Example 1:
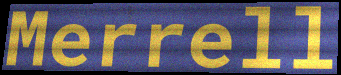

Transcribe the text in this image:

Merrell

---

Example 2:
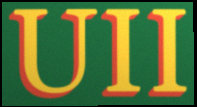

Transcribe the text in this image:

UII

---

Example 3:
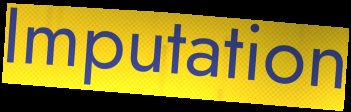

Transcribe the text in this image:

Imputation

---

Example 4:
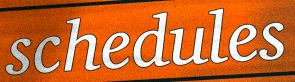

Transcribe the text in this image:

schedules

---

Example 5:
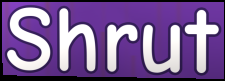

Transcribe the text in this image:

Shrut